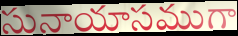
సునాయాసముగా